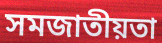
সমজাতীয়তা